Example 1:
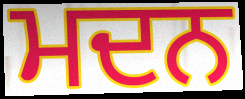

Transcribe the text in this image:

ਮਦਨ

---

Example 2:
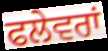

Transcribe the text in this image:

ਫਲੇਵਰਾਂ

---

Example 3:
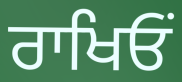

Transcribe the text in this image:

ਰਾਖਿਓਂ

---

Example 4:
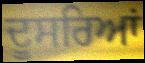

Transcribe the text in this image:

ਦੂਸਰਿਆਂ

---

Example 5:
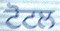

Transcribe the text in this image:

ਟੋਟਲ